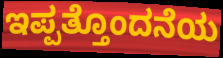
ಇಪ್ಪತ್ತೊಂದನೆಯ